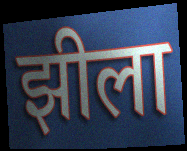
झीला